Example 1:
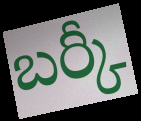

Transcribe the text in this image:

బర్కీ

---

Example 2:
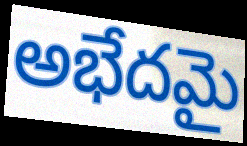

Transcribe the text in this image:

అభేదమై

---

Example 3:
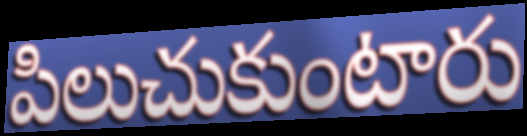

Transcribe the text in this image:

పిలుచుకుంటారు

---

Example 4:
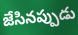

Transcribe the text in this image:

జేసినప్పుడు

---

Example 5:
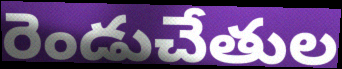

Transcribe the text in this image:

రెండుచేతుల